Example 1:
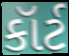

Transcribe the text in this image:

કૉર્ટ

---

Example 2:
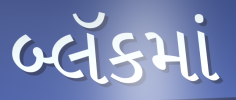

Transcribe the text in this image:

બ્લૅકમાં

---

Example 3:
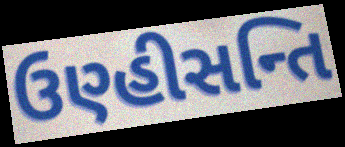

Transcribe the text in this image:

ઉણ્હીસન્તિ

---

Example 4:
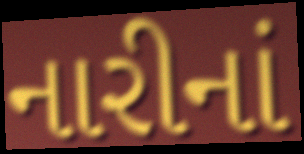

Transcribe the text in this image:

નારીનાં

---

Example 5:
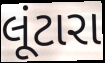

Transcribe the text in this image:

લૂંટારા